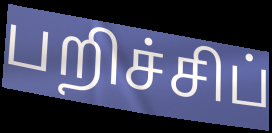
பறிச்சிப்